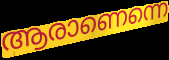
ആരാണെന്നെ